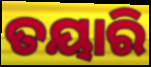
ତୟାରି